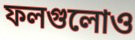
ফলগুলোও